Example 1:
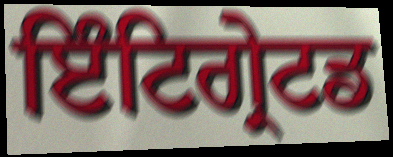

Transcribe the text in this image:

ਇੰਟਿਗ੍ਰੇਟਡ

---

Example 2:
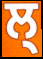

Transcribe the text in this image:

ਲ੍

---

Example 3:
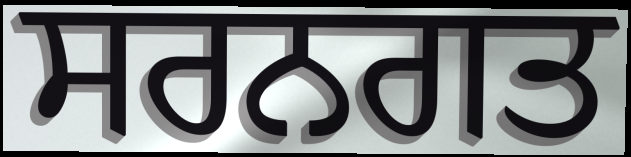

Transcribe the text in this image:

ਸਰਨਗਤ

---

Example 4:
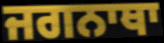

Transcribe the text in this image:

ਜਗਨਾਥਾ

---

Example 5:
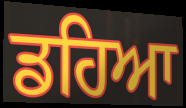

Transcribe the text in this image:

ਡਹਿਆ